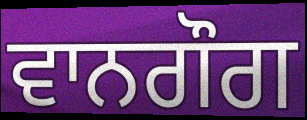
ਵਾਨਗੌਗ